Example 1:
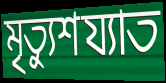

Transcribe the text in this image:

মৃত্যুশয্যাত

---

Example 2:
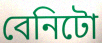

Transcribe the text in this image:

বেনিটো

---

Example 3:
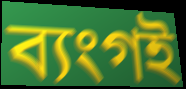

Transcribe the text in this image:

ব্যংগই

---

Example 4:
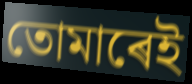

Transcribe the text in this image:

তোমাৰেই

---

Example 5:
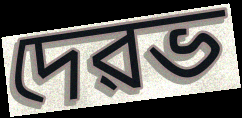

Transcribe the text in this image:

দেৱভ